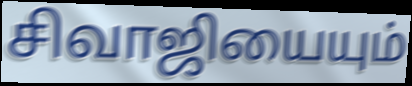
சிவாஜியையும்